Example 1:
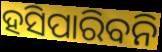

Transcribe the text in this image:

ହସିପାରିବନି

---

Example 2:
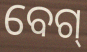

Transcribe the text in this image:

ବେଗ୍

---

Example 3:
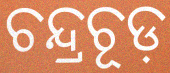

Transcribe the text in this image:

ଚନ୍ଦ୍ରଚୂଡ଼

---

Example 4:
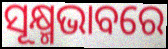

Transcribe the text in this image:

ସୂକ୍ଷ୍ମଭାବରେ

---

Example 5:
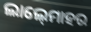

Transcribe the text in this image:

ଲାଲ୍‍ମୋହର